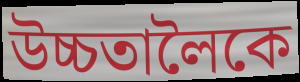
উচ্চতালৈকে